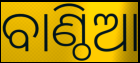
ବାଣ୍ଠିଆ